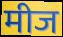
मीज